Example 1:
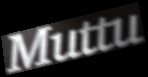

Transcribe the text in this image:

Muttu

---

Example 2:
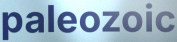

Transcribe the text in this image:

paleozoic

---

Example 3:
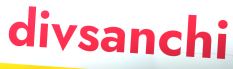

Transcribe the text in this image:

divsanchi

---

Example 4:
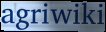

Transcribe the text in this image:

agriwiki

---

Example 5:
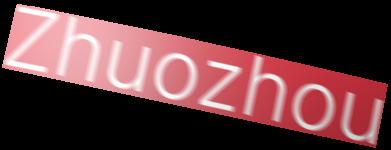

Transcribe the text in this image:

Zhuozhou